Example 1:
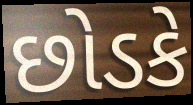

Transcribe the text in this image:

છોડકે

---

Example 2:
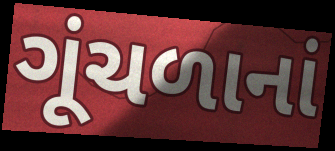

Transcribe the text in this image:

ગૂંચળાનાં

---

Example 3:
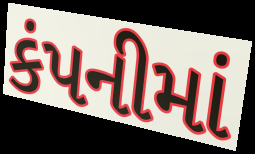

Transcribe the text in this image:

કંપનીમાં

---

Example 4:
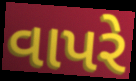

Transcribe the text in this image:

વાપરે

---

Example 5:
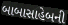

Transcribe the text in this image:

બાબાસાહેબની